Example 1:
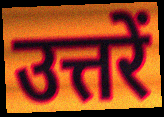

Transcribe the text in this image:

उत्तरें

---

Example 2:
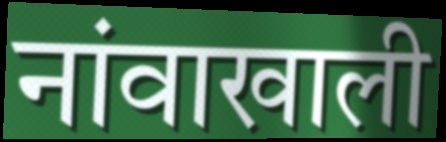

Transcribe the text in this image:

नांवाखाली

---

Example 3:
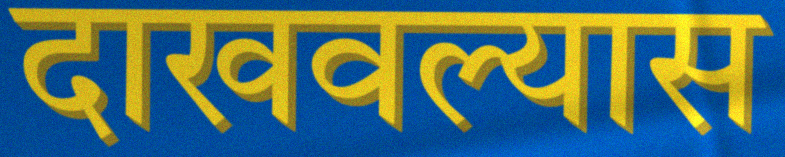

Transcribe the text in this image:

दाखवल्यास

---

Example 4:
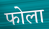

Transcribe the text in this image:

फोला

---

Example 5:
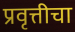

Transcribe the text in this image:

प्रवृत्तीचा